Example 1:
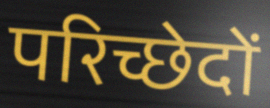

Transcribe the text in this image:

परिच्छेदों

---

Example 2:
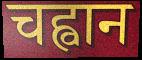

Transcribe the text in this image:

चह्वान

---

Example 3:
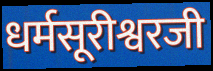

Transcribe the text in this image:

धर्मसूरीश्वरजी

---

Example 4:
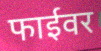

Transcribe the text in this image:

फाईवर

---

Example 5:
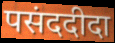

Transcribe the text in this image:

पसंददीदा